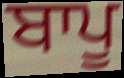
ਬਾਪੂ